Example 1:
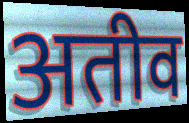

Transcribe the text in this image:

अतीव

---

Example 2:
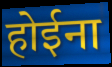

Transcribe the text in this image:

होईना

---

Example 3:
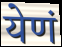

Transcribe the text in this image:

येणं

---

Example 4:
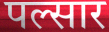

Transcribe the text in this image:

पल्सार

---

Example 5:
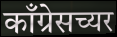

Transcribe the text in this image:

काँग्रेसच्यर